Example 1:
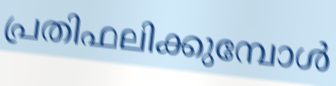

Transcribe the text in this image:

പ്രതിഫലിക്കുമ്പോൾ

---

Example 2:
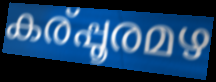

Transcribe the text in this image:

കര്പ്പൂരമഴ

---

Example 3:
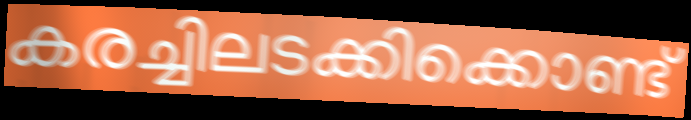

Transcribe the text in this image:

കരച്ചിലടക്കിക്കൊണ്ട്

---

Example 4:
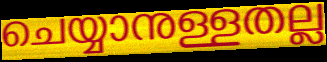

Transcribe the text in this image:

ചെയ്യാനുള്ളതല്ല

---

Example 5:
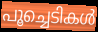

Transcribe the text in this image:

പൂച്ചെടികൾ